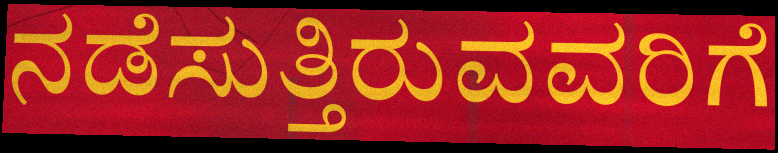
ನಡೆಸುತ್ತಿರುವವರಿಗೆ